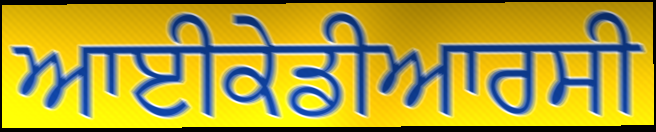
ਆਈਕੇਡੀਆਰਸੀ